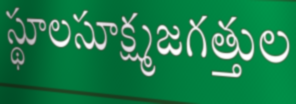
స్థూలసూక్ష్మజగత్తుల